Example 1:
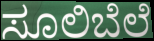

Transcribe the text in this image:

ಸೂಲಿಬೆಲೆ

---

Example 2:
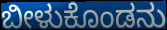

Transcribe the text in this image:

ಬೀಳುಕೊಂಡನು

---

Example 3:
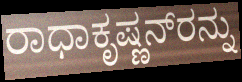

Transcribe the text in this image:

ರಾಧಾಕೃಷ್ಣನ್‌ರನ್ನು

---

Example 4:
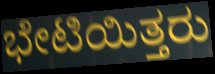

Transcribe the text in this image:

ಭೇಟಿಯಿತ್ತರು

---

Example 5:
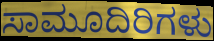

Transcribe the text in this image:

ಸಾಮೂದಿರಿಗಳು